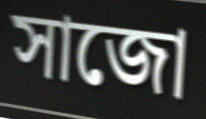
সাজো